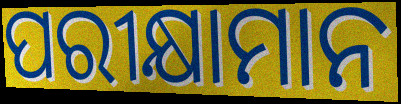
ପରୀକ୍ଷାମାନ